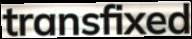
transfixed